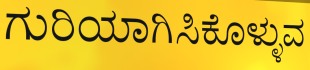
ಗುರಿಯಾಗಿಸಿಕೊಳ್ಳುವ